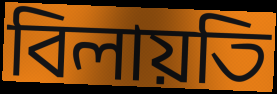
বিলায়তি